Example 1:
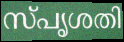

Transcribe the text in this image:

സ്പൃശതി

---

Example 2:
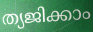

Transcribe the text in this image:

ത്യജിക്കാം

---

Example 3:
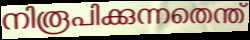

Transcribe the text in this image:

നിരൂപിക്കുന്നതെന്ത്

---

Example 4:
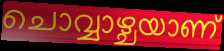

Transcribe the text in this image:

ചൊവ്വാഴ്ചയാണ്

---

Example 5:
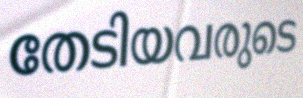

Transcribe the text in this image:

തേടിയവരുടെ